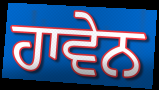
ਹਾਵੇਨ